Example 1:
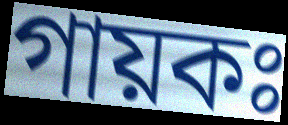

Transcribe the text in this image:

গায়কঃ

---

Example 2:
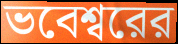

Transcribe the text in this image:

ভবেশ্বরের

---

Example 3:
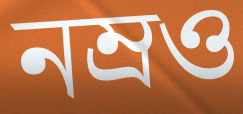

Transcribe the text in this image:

নম্রও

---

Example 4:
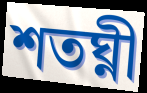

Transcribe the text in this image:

শতঘ্নী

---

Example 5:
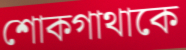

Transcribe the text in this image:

শোকগাথাকে